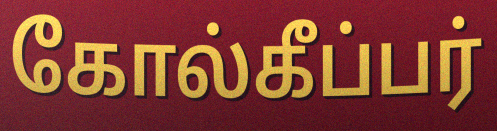
கோல்கீப்பர்